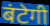
बंटेगी